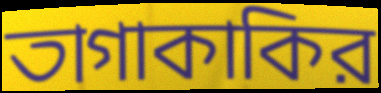
তাগাকাকির